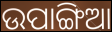
ଉପାଙ୍ଗିଆ